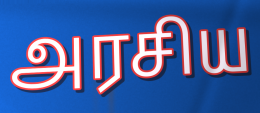
அரசிய